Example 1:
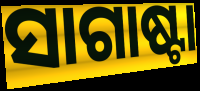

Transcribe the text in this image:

ସାଗାଷ୍ଟା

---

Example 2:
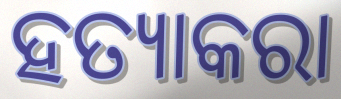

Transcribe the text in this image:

ହତ୍ୟାକରା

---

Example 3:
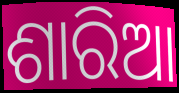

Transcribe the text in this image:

ଶାରିଆ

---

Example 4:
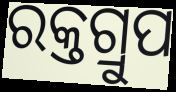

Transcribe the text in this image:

ରକ୍ତଗ୍ରୁପ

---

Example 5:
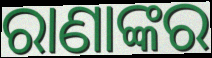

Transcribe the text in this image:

ରାଣାଙ୍କର